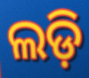
ଲଡ଼ି